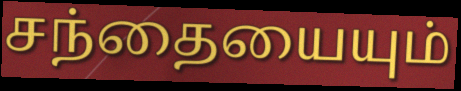
சந்தையையும்